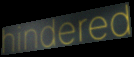
hindered